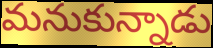
మనుకున్నాడు